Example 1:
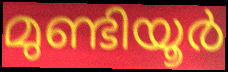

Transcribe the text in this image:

മുണ്ടിയൂർ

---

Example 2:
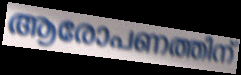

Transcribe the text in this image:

ആരോപണത്തിന്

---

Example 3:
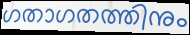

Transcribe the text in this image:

ഗതാഗതത്തിനും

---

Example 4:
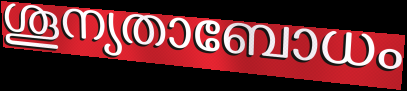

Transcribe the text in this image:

ശൂന്യതാബോധം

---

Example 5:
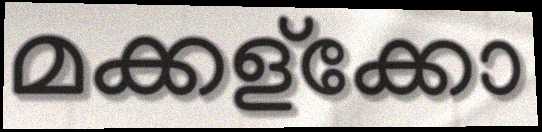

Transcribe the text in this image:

മക്കള്ക്കോ